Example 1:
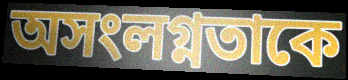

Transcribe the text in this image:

অসংলগ্নতাকে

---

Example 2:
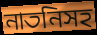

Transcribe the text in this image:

নাতনিসহ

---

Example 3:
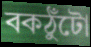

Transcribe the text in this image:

বকঠুঁটো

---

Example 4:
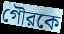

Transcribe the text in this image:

গৌরকে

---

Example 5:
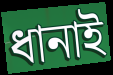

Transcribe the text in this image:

ধানাই